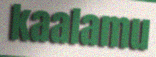
kaalamu